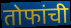
तोफांची